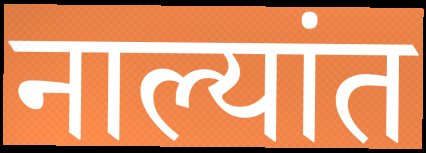
नाल्यांत